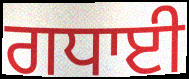
ਗਧਾਈ